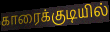
காரைக்குடியில்